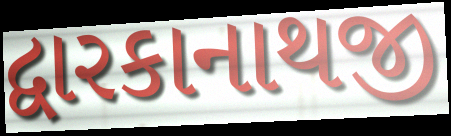
દ્વારકાનાથજી